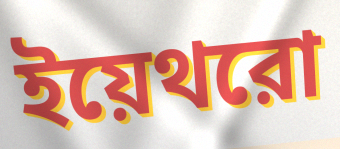
ইয়েথরো